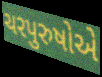
ચરપુરુષોએ